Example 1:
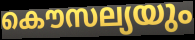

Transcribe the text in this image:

കൌസല്യയും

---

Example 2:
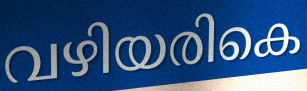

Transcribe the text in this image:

വഴിയരികെ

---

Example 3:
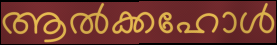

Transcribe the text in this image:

ആൽക്കഹോൾ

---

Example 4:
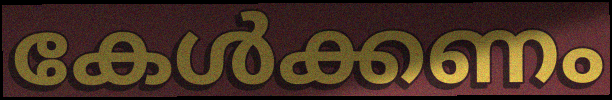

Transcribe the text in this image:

കേൾക്കണം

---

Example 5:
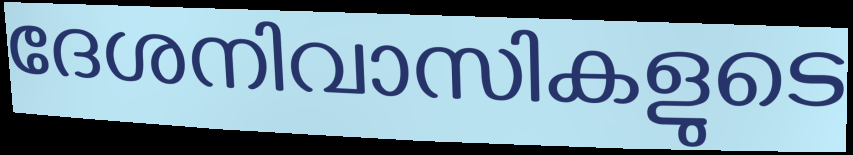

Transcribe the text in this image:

ദേശനിവാസികളുടെ